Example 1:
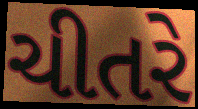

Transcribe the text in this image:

ચીતરે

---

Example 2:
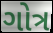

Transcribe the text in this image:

ગોત્ર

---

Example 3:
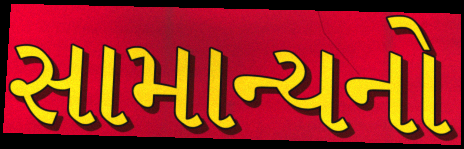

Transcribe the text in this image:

સામાન્યનો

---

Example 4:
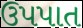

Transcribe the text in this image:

ઉપપાત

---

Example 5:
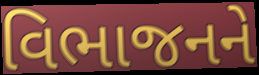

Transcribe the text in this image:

વિભાજનને